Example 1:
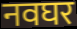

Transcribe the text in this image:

नवघर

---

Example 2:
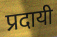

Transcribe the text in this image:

प्रदायी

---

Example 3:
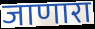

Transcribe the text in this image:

जाणारा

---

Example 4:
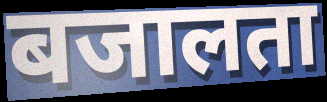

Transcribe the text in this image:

बजालता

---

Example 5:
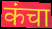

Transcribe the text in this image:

कंचा